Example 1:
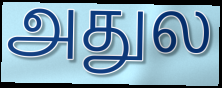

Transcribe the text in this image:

அதுல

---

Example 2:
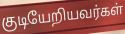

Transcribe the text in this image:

குடியேறியவர்கள்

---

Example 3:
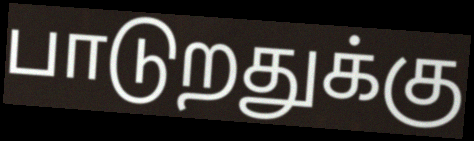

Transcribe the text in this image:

பாடுறதுக்கு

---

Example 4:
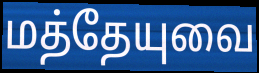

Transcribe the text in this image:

மத்தேயுவை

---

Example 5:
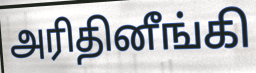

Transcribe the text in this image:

அரிதினீங்கி